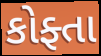
કોફ્તા